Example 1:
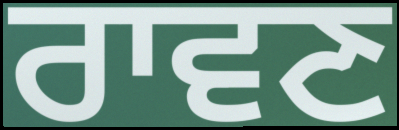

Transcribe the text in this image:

ਰਾਵਣ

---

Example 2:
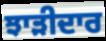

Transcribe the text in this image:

ਝਾੜੀਦਾਰ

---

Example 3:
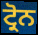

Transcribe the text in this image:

ਟ੍ਰੋਨ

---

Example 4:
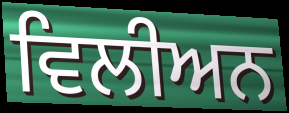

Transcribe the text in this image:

ਵਿਲੀਅਨ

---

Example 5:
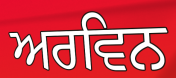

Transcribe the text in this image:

ਅਰਵਿਨ